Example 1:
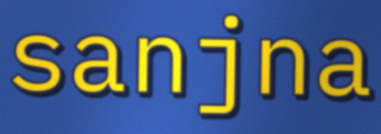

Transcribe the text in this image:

sanjna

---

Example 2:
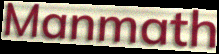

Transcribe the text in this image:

Manmath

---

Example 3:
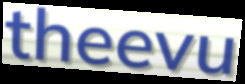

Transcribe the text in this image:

theevu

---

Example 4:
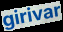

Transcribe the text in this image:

girivar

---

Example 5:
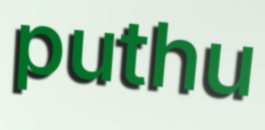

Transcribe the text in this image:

puthu